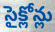
సైక్లోన్లు